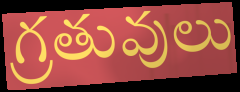
గ్రతువులు